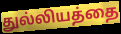
துல்லியத்தை